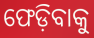
ଫେଡ଼ିବାକୁ